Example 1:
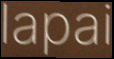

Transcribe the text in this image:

lapai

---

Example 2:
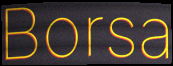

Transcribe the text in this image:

Borsa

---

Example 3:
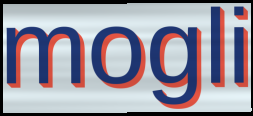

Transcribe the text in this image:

mogli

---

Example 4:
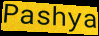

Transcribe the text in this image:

Pashya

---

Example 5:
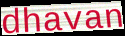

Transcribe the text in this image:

dhavan